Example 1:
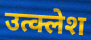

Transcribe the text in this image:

उत्क्लेश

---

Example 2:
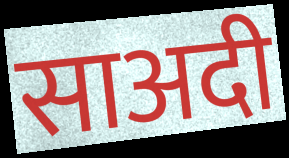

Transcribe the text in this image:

साअदी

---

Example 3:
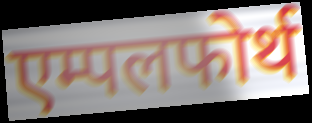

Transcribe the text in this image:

एम्पलफोर्थ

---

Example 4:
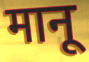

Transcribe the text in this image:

मानू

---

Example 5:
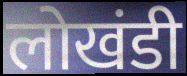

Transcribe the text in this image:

लोखंडी